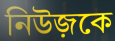
নিউজ়কে